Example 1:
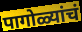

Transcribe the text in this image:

पागोळ्यांचं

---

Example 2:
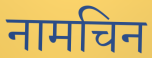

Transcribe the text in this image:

नामचिन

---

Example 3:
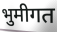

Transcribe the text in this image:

भुमीगत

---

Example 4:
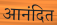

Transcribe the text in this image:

आनंदित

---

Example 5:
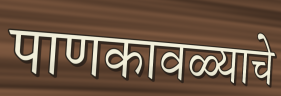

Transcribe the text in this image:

पाणकावळ्याचे